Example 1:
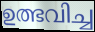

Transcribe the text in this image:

ഉത്ഭവിച്ച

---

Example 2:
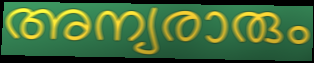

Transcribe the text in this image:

അന്യരാരും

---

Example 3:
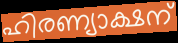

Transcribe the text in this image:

ഹിരണ്യാക്ഷന്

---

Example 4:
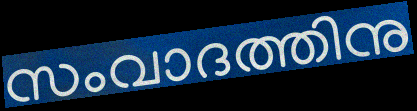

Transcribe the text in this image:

സംവാദത്തിനു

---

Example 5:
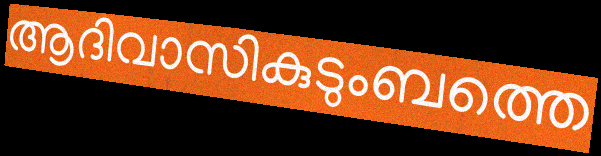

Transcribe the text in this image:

ആദിവാസികുടുംബത്തെ